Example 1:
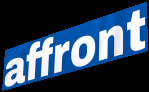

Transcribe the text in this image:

affront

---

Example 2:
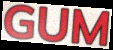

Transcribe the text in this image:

GUM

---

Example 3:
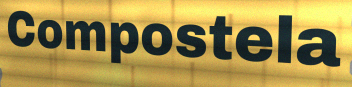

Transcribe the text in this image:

Compostela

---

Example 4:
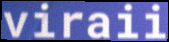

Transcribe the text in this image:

viraii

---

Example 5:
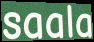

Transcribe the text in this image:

saala